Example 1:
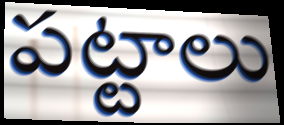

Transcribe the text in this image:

పట్టాలు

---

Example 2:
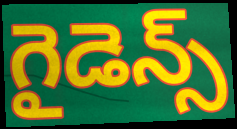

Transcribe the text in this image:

గైడెన్స్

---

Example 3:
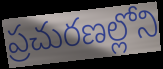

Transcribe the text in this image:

ప్రచురణల్లోని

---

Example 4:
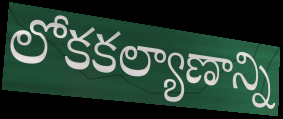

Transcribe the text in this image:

లోకకల్యాణాన్ని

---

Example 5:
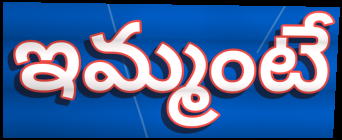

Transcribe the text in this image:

ఇమ్మంటే